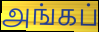
அங்கப்